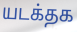
யடக்தக